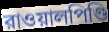
রাওয়ালপিণ্ডি